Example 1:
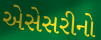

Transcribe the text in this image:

એસેસરીનો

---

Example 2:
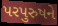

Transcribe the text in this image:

પરપુરુષને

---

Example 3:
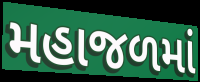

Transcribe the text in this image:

મહાજળમાં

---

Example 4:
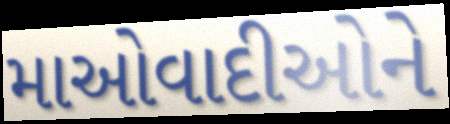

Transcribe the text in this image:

માઓવાદીઓને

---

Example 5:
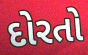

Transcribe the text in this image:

દોરતો